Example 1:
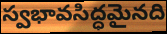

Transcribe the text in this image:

స్వభావసిద్ధమైనది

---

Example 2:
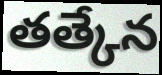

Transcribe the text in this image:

తత్కేన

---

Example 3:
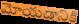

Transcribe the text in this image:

మోయడానికి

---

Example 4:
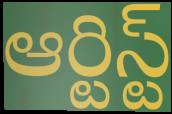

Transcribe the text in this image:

ఆర్టిస్ట్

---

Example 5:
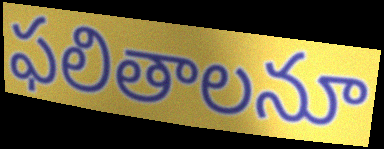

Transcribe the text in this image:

ఫలితాలనూ